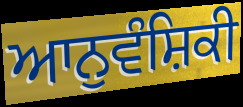
ਆਨੁਵੰਸ਼ਿਕੀ